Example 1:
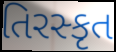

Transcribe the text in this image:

તિરસ્કૃત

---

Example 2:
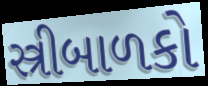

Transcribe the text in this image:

સ્ત્રીબાળકો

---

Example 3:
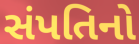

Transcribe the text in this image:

સંપતિનો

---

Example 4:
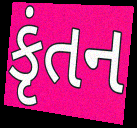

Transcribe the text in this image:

કૃંતન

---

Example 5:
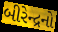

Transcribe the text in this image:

બીરેન્દ્રનો